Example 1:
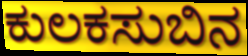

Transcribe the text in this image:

ಕುಲಕಸುಬಿನ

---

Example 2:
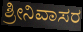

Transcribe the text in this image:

ಶ್ರೀನಿವಾಸರ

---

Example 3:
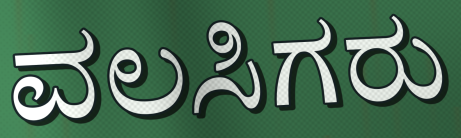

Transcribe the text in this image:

ವಲಸಿಗರು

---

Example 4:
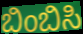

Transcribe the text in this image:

ಬಿಂಬಿಸಿ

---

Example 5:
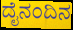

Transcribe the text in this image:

ದೈನಂದಿನ